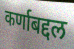
कर्णाबद्दल